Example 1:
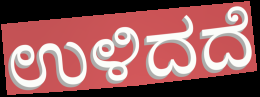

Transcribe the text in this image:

ಉಳಿದದೆ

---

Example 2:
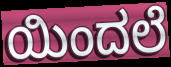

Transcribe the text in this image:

ಯಿಂದಲೆ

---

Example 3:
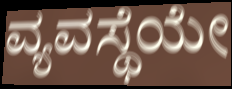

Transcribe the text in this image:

ವ್ಯವಸ್ಥೆಯೇ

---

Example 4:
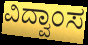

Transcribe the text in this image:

ವಿದ್ವಾಂಸ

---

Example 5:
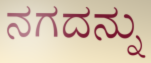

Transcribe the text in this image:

ನಗದನ್ನು